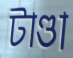
টাণ্ডা